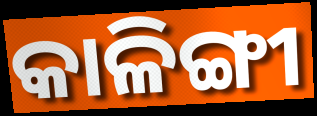
କାଳିଙ୍ଗୀ